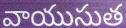
వాయుసుత